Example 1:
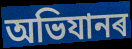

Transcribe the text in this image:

অভিযানৰ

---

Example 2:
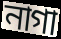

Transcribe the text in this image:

নাগা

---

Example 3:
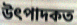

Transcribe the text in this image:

উৎপাদকত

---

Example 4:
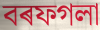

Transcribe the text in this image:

বৰফগলা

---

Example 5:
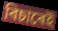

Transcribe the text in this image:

বিচাৰেই